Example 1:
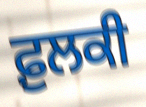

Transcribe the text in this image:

ਫ਼ੁਲਕੀ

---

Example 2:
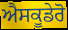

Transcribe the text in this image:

ਐਸਕੂਡੇਰੋ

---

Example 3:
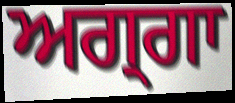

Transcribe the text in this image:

ਅਗ੍ਗਾ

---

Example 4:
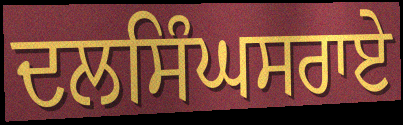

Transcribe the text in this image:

ਦਲਸਿੰਘਸਰਾਏ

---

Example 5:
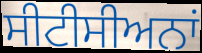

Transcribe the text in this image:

ਸੀਟੀਸੀਅਨਾਂ